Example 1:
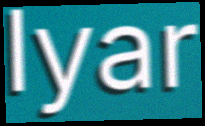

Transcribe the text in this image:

Iyar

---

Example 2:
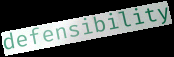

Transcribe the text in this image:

defensibility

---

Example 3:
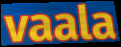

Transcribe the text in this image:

vaala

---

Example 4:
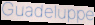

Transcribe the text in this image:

Guadeluppe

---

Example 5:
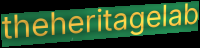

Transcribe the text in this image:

theheritagelab